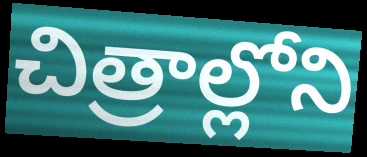
చిత్రాల్లోని